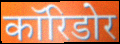
कॉरिडोर